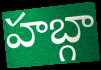
హబ్గా